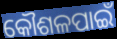
କୌଶଳପାଇଁ